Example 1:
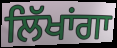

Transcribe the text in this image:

ਲਿੱਖਾਂਗਾ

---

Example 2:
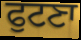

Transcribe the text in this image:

ਫੁਟਣਾ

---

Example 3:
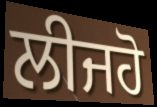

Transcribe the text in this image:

ਲੀਜਹੋ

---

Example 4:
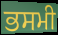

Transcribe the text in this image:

ਭਸਮੀ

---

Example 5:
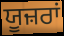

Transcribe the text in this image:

ਯੂਜ਼ਰਾਂ